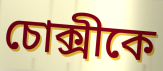
চোক্সীকে